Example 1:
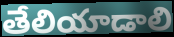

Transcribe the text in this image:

తేలియాడాలి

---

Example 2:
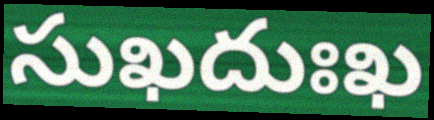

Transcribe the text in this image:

సుఖదుఃఖ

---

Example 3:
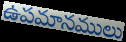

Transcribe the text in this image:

ఉపమానములు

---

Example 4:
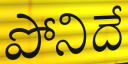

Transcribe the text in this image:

పోనిదే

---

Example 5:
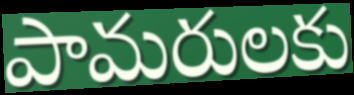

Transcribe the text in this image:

పామరులకు